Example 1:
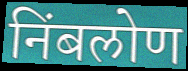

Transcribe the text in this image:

निंबलोण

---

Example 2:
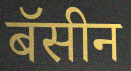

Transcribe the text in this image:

बॅसीन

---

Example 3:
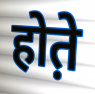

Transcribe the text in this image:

होत़े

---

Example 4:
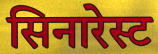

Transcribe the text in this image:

सिनारेस्ट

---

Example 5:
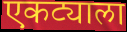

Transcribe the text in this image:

एकट्याला